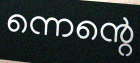
ന്നെന്റെ